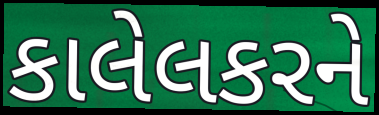
કાલેલકરને